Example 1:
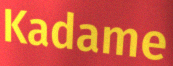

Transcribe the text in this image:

Kadame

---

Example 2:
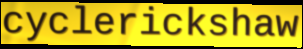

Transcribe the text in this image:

cyclerickshaw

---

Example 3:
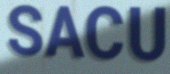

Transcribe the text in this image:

SACU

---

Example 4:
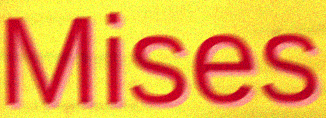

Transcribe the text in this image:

Mises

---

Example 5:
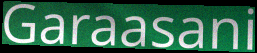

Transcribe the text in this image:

Garaasani